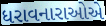
ધરાવનારાઓએ